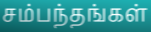
சம்பந்தங்கள்